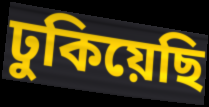
ঢুকিয়েছি